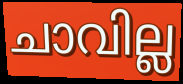
ചാവില്ല